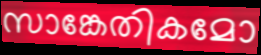
സാങ്കേതികമോ